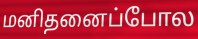
மனிதனைப்போல